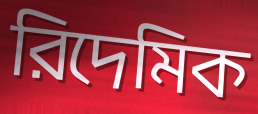
রিদেমিক